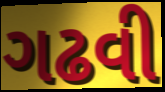
ગઢવી